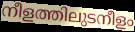
നീളത്തിലുടനീളം